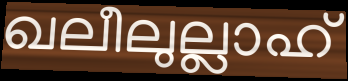
ഖലീലുല്ലാഹ്